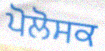
ਪੋਲੋਸਕ